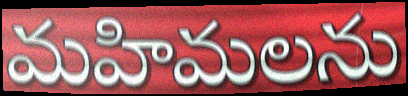
మహిమలను